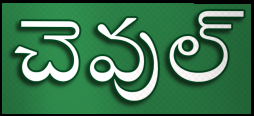
చెవుల్